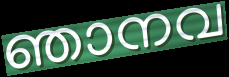
ഞാനവ